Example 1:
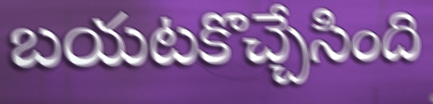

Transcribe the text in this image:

బయటకొచ్చేసింది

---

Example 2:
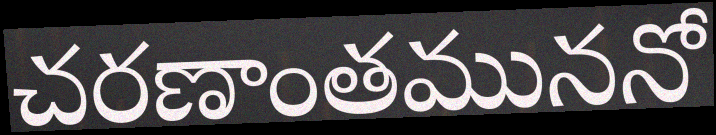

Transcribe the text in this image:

చరణాంతముననో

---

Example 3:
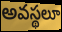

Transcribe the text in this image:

అవస్థలూ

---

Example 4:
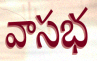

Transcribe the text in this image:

వాసభ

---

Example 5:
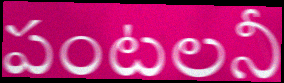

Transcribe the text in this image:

పంటలనీ